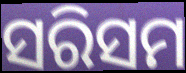
ସରିସମ